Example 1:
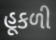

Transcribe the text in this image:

હૂકળી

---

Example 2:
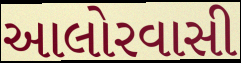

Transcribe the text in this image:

આલોરવાસી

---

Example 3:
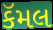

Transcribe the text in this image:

કૅમલ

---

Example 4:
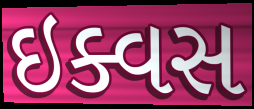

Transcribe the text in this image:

ઇક્વસ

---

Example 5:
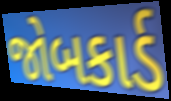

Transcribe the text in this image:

જોબકાર્ડ